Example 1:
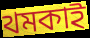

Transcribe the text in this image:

থমকাই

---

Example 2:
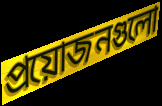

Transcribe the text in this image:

প্রয়োজনগুলো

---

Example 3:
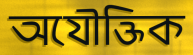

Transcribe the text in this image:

অযৌক্তিক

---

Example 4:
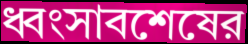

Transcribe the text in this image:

ধ্বংসাবশেষের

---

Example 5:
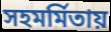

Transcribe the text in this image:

সহমর্মিতায়